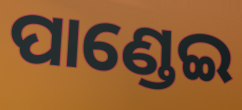
ପାଣ୍ଡେଇ